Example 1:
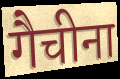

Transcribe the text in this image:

गैचीना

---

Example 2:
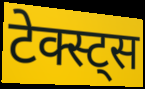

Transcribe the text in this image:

टेक्स्ट्स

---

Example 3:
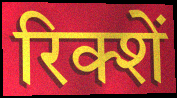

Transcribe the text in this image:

रिक्शें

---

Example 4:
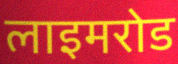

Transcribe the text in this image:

लाइमरोड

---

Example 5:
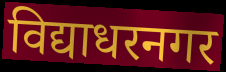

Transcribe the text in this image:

विद्याधरनगर